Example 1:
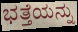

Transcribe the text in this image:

ಭತ್ತೆಯನ್ನು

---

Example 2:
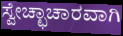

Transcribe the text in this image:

ಸ್ವೇಚ್ಛಾಚಾರವಾಗಿ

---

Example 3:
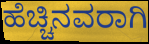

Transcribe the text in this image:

ಹೆಚ್ಚಿನವರಾಗಿ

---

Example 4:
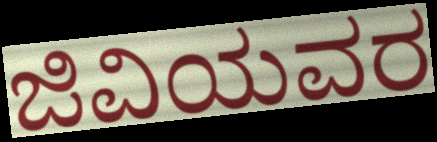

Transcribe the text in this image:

ಜಿವಿಯವರ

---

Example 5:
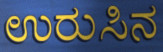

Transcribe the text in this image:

ಉರುಸಿನ